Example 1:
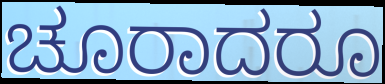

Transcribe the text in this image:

ಚೂರಾದರೂ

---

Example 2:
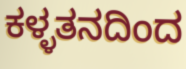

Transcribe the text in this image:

ಕಳ್ಳತನದಿಂದ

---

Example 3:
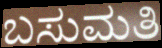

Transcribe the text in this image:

ಬಸುಮತಿ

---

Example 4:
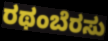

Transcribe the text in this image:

ರಥಂಬೆರಸು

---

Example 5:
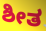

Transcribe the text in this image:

ಶೀತ